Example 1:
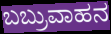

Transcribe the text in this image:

ಬಬ್ರುವಾಹನ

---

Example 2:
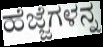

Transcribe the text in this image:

ಹೆಜ್ಜೆಗಳನ್ನ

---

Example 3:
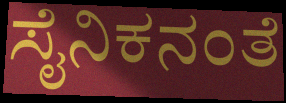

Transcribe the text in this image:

ಸೈನಿಕನಂತೆ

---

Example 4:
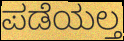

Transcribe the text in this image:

ಪಡೆಯಲ್ತ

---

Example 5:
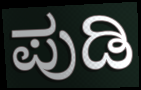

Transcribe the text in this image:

ಪುಡಿ